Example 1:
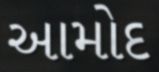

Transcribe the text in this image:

આમોદ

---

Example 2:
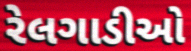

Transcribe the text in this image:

રેલગાડીઓ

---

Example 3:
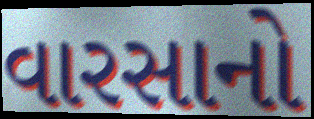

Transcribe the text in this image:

વારસાનો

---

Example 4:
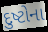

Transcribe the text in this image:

દુષ્ટોના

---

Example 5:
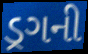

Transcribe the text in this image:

ડ્રગની